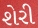
શેરી